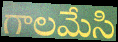
గాలమేసి